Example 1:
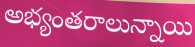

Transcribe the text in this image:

అభ్యంతరాలున్నాయి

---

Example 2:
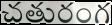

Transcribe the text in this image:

చతురంగ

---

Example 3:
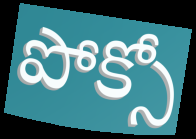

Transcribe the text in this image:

పోక్సో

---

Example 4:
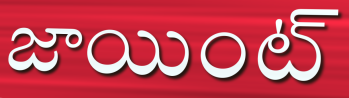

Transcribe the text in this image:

జాయింట్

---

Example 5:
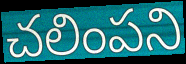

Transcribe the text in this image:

చలింపని